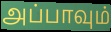
அப்பாவும்